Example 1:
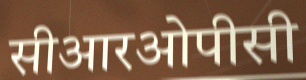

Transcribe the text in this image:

सीआरओपीसी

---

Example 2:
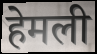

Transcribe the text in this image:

हेमली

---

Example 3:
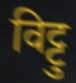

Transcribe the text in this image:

विट्टु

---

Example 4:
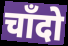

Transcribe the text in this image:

चाँदो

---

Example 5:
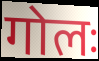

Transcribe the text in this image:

गोलः